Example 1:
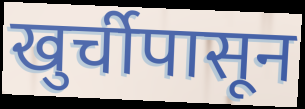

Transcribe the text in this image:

खुर्चीपासून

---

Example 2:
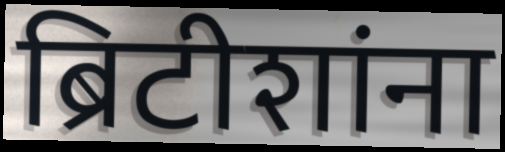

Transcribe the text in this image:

ब्रिटीशांना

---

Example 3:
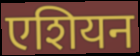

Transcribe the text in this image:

एशियन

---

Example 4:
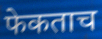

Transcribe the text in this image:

फेकताच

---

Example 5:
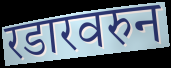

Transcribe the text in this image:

रडारवरुन